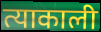
त्याकाली